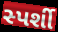
સ્પર્શી